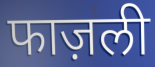
फाज़ली